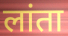
लांता